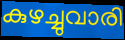
കുഴച്ചുവാരി